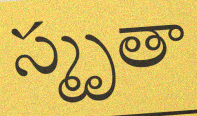
స్మృతా